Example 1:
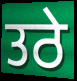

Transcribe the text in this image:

उठे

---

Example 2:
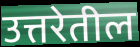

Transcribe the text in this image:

उत्तरेतील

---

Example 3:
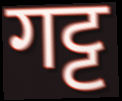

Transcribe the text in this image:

गट्ट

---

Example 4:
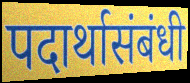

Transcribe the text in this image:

पदार्थासंबंधी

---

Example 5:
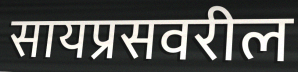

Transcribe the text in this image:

सायप्रसवरील